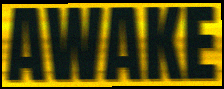
AWAKE